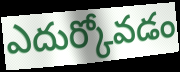
ఎదుర్కోవడం